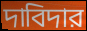
দাবিদার